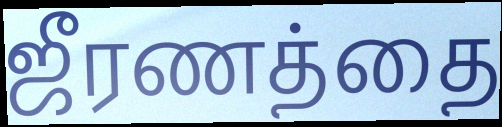
ஜீரணத்தை